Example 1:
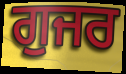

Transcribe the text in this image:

ਗੁਜਰ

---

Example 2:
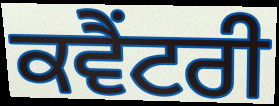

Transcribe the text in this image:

ਕਵੈਂਟਰੀ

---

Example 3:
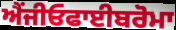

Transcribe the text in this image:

ਐਂਜੀਓਫਾਈਬਰੋਮਾ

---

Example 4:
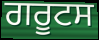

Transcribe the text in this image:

ਗਰੂਟਸ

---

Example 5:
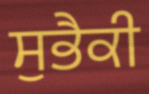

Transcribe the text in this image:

ਸੁਭੈਕੀ